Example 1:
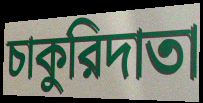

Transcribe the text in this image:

চাকুরিদাতা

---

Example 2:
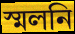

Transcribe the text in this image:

স্মলনি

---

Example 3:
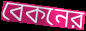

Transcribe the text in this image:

বেকনের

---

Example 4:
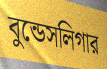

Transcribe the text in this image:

বুন্ডেসলিগার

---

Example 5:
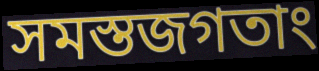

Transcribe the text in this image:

সমস্তজগতাং